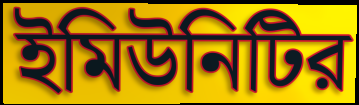
ইমিউনিটির